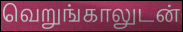
வெறுங்காலுடன்